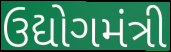
ઉદ્યોગમંત્રી